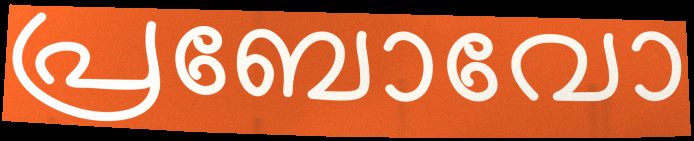
പ്രബോവോ